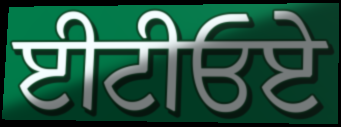
ਈਟੀਓਏ